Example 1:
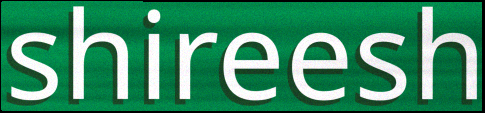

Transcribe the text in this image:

shireesh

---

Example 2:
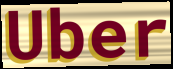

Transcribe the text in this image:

Uber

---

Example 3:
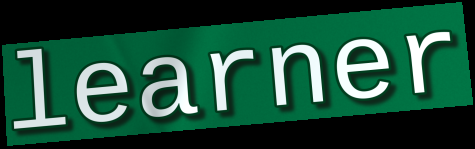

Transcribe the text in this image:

learner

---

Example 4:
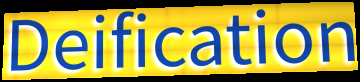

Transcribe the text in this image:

Deification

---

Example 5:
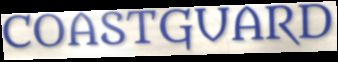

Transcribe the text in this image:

COASTGUARD